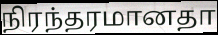
நிரந்தரமானதா